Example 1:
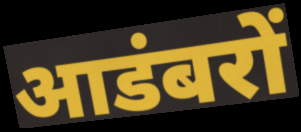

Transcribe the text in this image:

आडंबरों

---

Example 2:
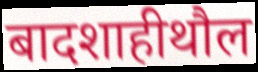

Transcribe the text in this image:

बादशाहीथौल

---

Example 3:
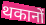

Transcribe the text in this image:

थकानों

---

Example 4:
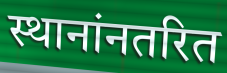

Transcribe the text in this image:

स्थानांनतरित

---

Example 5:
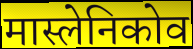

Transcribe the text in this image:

मास्लेनिकोव